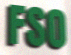
FSO